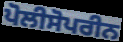
ਪੋਲੀਸੋਪਰੀਨ